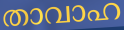
താവാഹ